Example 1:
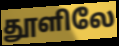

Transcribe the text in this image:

தூளிலே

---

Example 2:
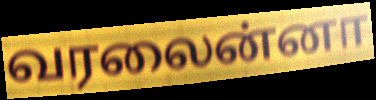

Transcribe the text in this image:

வரலைன்னா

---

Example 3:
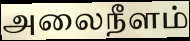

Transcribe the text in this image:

அலைநீளம்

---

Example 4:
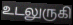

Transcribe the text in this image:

உடலுருகி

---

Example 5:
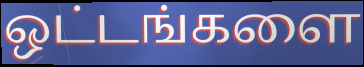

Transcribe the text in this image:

ஒட்டங்களை